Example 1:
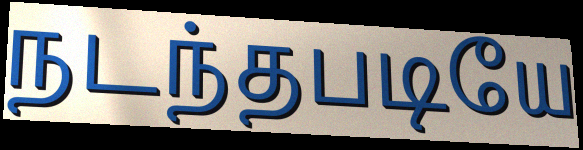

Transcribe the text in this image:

நடந்தபடியே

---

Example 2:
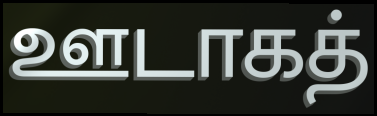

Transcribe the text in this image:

ஊடாகத்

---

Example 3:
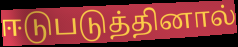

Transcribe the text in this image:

ஈடுபடுத்தினால்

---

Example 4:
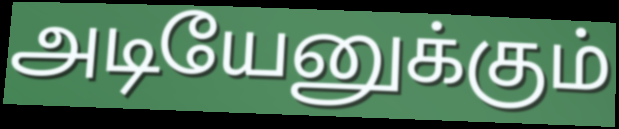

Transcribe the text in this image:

அடியேனுக்கும்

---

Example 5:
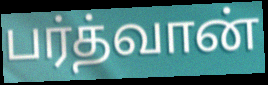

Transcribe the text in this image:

பர்த்வான்